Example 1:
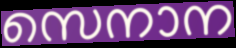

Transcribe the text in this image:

സെനാന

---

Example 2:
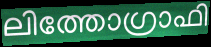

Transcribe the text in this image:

ലിത്തോഗ്രാഫി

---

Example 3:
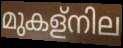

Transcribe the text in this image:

മുകള്നില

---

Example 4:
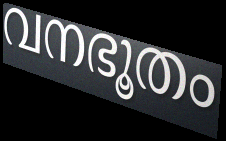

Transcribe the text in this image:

വനഭൂതം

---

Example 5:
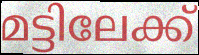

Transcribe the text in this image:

മട്ടിലേക്ക്